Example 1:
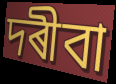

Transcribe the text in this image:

দৰীবা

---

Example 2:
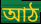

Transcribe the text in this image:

আঠ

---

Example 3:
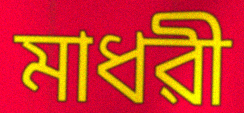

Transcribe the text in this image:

মাধৱী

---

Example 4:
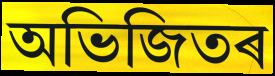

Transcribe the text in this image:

অভিজিতৰ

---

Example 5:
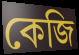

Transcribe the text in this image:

কেজি